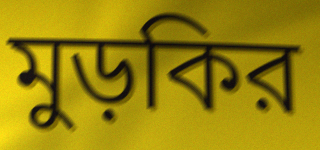
মুড়কির